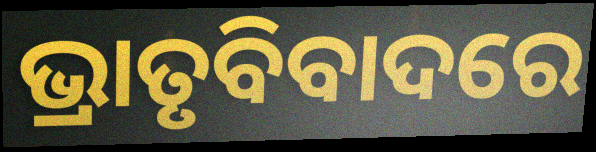
ଭ୍ରାତୃବିବାଦରେ